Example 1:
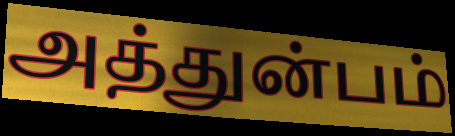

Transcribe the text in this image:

அத்துன்பம்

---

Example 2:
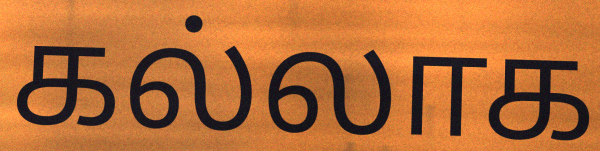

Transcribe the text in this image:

கல்லாக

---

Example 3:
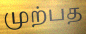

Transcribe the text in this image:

முற்பத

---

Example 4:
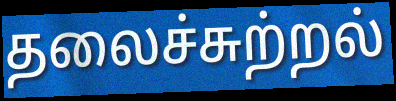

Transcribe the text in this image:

தலைச்சுற்றல்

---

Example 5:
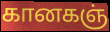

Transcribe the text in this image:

கானகஞ்